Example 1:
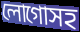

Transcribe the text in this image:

লোগোসহ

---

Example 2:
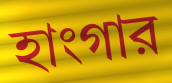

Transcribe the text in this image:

হাংগার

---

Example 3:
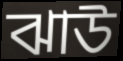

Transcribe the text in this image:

ঝাউ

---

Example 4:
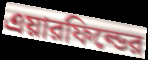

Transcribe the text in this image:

এয়ারফিল্ডের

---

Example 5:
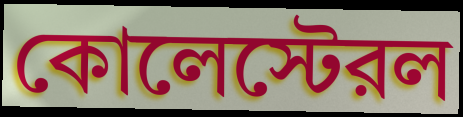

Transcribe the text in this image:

কোলেস্টেরল